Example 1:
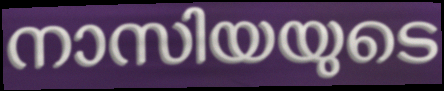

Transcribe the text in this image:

നാസിയയുടെ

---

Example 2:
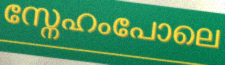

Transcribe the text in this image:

സ്നേഹംപോലെ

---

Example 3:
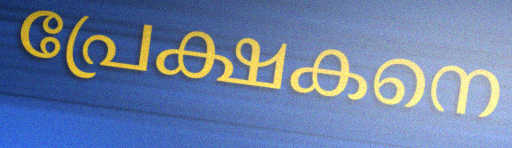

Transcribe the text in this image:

പ്രേക്ഷകനെ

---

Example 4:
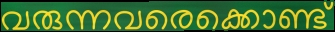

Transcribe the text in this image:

വരുന്നവരെക്കൊണ്ട്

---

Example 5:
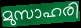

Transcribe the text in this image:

മുസാഹരി